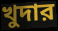
খুদার